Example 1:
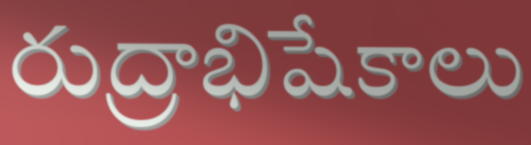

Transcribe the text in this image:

రుద్రాభిషేకాలు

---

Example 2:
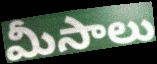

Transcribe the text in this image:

మీసాలు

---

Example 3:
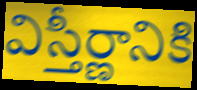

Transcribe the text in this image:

విస్తీర్ణానికి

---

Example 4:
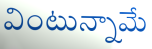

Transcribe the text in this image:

వింటున్నామే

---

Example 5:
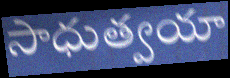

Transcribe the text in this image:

సాధుత్వయా